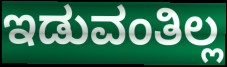
ಇಡುವಂತಿಲ್ಲ